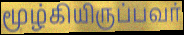
மூழ்கியிருப்பவர்